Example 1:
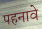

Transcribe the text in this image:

पहनावे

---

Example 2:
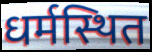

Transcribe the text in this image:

धर्मस्थित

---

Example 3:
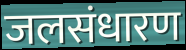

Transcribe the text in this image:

जलसंधारण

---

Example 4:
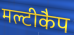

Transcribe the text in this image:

मल्टीकैप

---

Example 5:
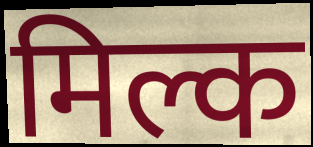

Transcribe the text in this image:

मिल्क